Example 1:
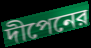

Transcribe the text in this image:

দীপেনের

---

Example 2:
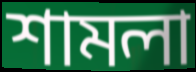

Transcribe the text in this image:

শামলা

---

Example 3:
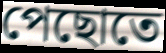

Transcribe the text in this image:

পেছোতে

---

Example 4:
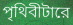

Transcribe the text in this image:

পৃথিবীটারে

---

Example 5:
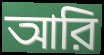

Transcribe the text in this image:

আরি